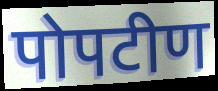
पोपटीण